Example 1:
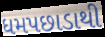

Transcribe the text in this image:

ધમપછાડાથી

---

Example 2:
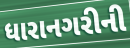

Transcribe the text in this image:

ધારાનગરીની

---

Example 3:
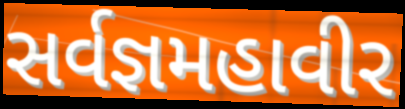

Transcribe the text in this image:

સર્વજ્ઞમહાવીર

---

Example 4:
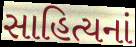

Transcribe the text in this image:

સાહિત્યનાં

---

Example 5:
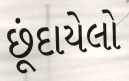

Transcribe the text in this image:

છૂંદાયેલો